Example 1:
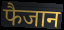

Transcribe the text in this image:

फैजान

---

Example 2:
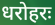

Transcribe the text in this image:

धरोहरः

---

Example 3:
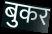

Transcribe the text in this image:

बुकर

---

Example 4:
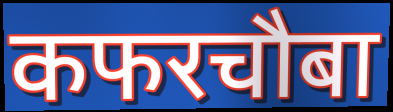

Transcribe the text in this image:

कफरचौबा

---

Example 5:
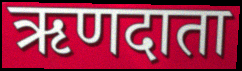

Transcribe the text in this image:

ऋणदाता